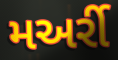
મઅર્રી